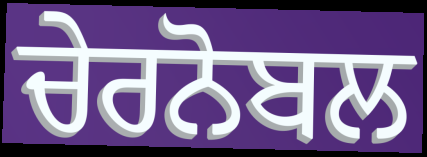
ਚੇਰਨੋਬਲ